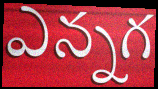
ఎన్నగ